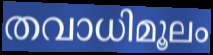
തവാധിമൂലം